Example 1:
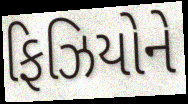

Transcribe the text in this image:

ફિઝિયોને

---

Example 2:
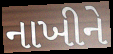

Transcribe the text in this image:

નાખીને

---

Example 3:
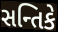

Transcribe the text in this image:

સન્તિકે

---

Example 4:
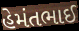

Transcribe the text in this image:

હેમંતભાઈ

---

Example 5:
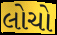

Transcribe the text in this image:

લોચો